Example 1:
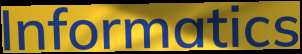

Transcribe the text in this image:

Informatics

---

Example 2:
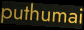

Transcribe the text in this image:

puthumai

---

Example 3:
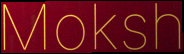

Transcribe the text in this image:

Moksh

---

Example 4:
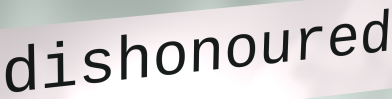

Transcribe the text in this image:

dishonoured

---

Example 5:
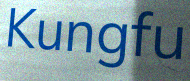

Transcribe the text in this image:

Kungfu